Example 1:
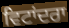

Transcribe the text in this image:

ਵਿਟਾਂਦਰਾ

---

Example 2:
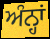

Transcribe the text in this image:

ਅੰਨ੍ਹਾਂ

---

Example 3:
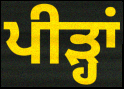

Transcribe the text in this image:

ਪੀੜ੍ਹਾਂ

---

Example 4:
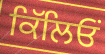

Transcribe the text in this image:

ਕਿੱਲਿਓਂ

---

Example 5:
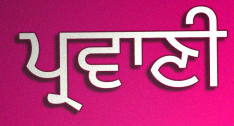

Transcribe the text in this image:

ਪ੍ਰਵਾਣੀ